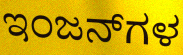
ಇಂಜನ್‌ಗಳ